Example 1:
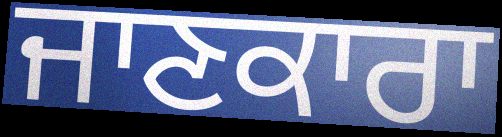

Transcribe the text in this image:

ਜਾਣਕਾਰਾ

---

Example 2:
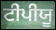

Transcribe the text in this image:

ਟੀਪੀਯੂ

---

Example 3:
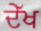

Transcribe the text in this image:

ਦੇੱਖ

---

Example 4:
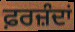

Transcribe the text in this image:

ਫ਼ਰਜ਼ੰਦਾਂ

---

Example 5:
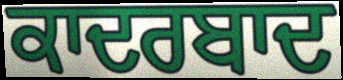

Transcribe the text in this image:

ਕਾਦਰਬਾਦ